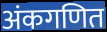
अंकगणित